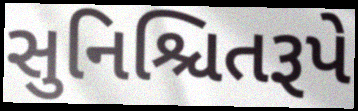
સુનિશ્ચિતરૂપે